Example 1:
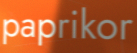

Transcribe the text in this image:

paprikor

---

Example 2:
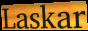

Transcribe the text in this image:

Laskar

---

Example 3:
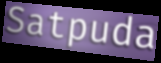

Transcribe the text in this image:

Satpuda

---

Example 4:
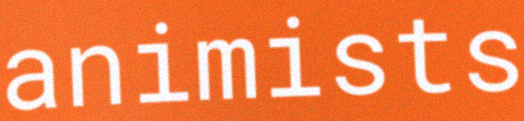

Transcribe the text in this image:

animists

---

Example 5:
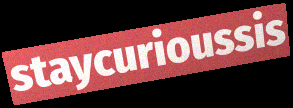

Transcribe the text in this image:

staycurioussis